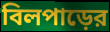
বিলপাড়ের